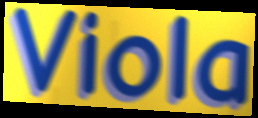
Viola